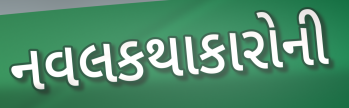
નવલકથાકારોની